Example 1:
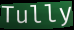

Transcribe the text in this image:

Tully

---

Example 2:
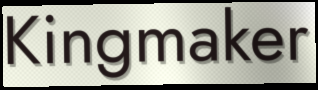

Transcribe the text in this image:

Kingmaker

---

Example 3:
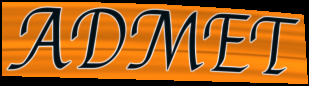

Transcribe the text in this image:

ADMET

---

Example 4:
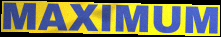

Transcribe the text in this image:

MAXIMUM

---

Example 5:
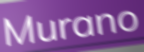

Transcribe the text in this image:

Murano